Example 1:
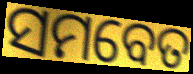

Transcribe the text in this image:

ସମବେତ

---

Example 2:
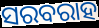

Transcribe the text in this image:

ସରବରାହ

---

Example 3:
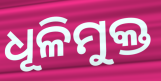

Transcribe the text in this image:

ଧୂଳିମୁକ୍ତ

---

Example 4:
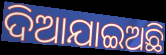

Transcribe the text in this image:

ଦିଆଯାଇଅଛି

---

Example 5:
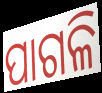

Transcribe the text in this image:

ପାଗଳି